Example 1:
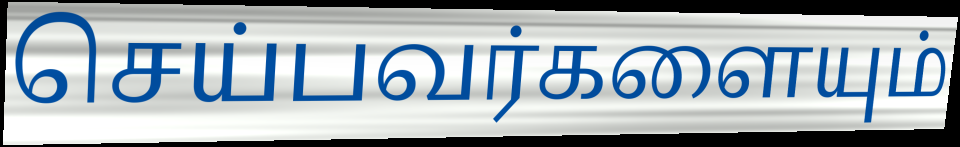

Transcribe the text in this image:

செய்பவர்களையும்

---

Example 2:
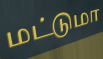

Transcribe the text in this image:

மட்டுமா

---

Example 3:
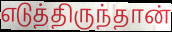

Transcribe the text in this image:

எடுத்திருந்தான்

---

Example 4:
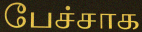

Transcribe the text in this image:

பேச்சாக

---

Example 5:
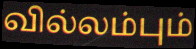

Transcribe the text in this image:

வில்லம்பும்